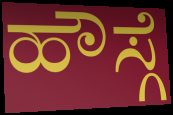
ಹೌಸ್ಗೆ